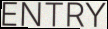
ENTRY